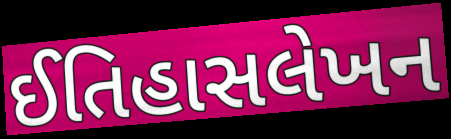
ઈતિહાસલેખન